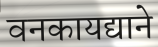
वनकायद्याने